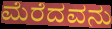
ಮೆರೆದವನು